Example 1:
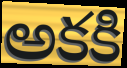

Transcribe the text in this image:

అకకి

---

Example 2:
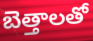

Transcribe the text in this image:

బెత్తాలతో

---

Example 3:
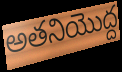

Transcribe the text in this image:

అతనియొద్ద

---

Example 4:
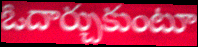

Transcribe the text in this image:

ఓదార్చుకుంటూ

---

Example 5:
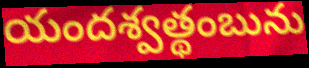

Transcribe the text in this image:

యందశ్వత్థంబును